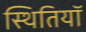
स्थितियॉ